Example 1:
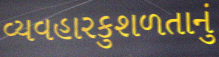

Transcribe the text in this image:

વ્યવહારકુશળતાનું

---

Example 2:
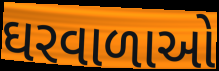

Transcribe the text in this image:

ઘરવાળાઓ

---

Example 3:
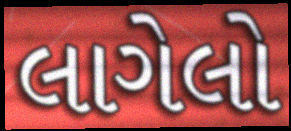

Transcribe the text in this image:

લાગેલો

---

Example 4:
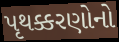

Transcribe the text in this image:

પૃથક્કરણોનો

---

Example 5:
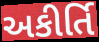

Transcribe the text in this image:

અકીર્તિ